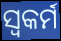
ସ୍ଵକର୍ମ